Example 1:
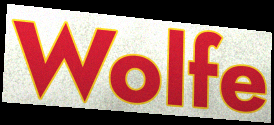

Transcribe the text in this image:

Wolfe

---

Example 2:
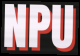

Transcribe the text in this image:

NPU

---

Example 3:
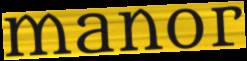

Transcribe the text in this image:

manor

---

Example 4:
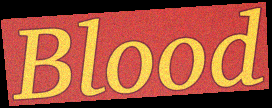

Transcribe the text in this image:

Blood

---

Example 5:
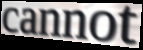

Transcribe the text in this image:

cannot